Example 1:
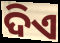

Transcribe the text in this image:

ଦିଏ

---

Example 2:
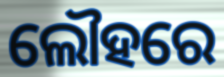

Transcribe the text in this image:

ଲୌହରେ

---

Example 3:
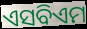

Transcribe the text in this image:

ଏସବିଏମ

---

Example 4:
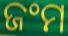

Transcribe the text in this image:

ଜଂମ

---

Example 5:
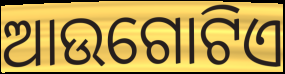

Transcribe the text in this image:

ଆଉଗୋଟିଏ